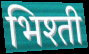
भिश्ती